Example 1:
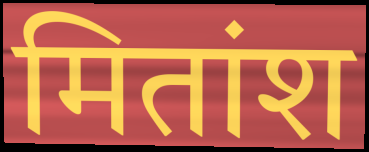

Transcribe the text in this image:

मितांश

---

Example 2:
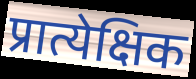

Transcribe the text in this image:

प्रात्येक्षिक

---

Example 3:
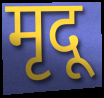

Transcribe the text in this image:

मृदू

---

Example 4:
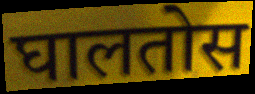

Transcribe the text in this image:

घालतोस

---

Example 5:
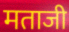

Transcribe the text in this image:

मताजी